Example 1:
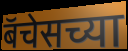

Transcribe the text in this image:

बॅचेसच्या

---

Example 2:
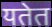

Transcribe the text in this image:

यतेत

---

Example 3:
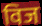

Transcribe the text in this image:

विज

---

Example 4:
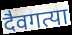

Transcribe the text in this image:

दैवगत्या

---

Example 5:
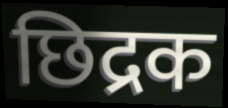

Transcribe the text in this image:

छिद्रक